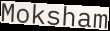
Moksham